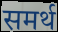
समर्थ